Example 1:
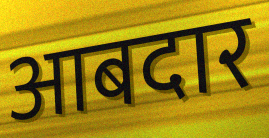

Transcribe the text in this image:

आबदार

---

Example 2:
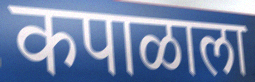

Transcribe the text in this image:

कपाळाला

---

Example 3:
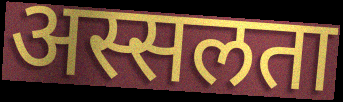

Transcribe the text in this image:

अस्सलता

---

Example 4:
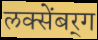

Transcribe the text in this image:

लक्सेंबर्ग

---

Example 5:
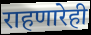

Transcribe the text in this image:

राहणारेही